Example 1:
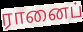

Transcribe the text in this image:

ரானைப்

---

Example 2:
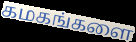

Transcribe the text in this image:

கமகங்களை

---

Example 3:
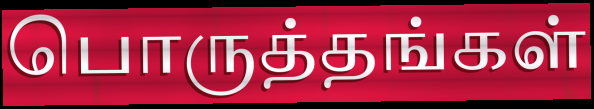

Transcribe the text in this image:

பொருத்தங்கள்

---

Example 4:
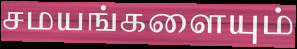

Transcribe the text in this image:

சமயங்களையும்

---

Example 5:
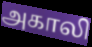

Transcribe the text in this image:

அகாலி